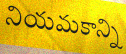
నియమకాన్ని